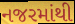
નજરમાંથી